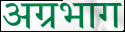
अग्रभाग